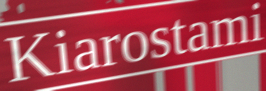
Kiarostami